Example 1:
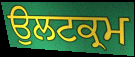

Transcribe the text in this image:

ਉਲਟਕ੍ਰਮ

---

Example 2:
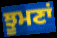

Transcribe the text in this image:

ਝੂਮਣਾਂ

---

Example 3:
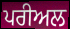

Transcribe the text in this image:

ਪਰੀਅਲ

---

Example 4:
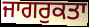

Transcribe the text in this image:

ਜਾਗਰੁਕਤਾ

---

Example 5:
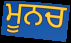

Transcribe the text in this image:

ਮੂਨਚ